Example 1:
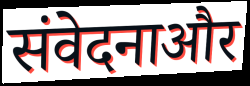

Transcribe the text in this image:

संवेदनाऔर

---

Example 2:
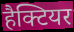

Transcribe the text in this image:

हैक्टियर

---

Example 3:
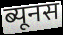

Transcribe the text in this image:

ब्यूनस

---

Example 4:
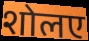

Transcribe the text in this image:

शोलए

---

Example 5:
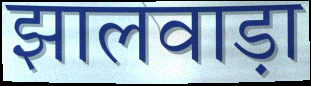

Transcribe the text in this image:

झालवाड़ा